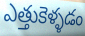
ఎత్తుకెళ్ళడం